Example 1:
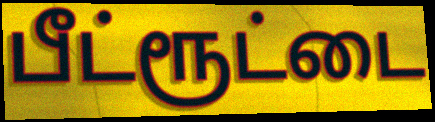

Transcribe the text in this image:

பீட்ரூட்டை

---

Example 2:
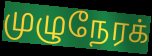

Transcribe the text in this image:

முழுநேரக்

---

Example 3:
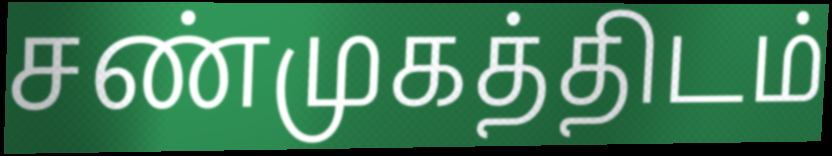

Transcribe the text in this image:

சண்முகத்திடம்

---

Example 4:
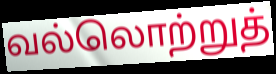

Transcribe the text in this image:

வல்லொற்றுத்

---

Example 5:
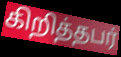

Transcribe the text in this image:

கிறித்தபர்